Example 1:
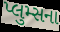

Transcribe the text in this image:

પ્લુમ્સના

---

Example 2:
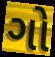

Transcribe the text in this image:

ગો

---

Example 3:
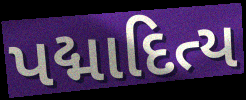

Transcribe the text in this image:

પદ્માદિત્ય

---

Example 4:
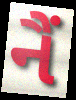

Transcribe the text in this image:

નૈં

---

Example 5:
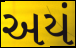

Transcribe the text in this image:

અયં